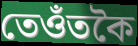
তেওঁতকৈ